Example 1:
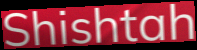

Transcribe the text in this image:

Shishtah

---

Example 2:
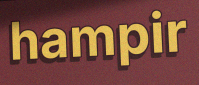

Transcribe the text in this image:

hampir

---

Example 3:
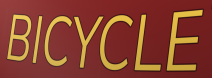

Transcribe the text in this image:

BICYCLE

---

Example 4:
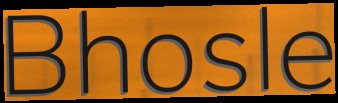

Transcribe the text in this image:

Bhosle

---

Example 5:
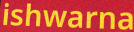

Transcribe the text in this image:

ishwarna